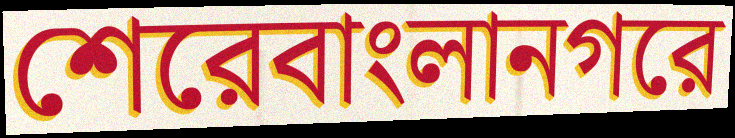
শেরেবাংলানগরে